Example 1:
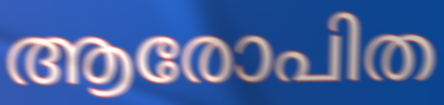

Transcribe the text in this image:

ആരോപിത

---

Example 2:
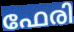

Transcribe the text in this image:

ഫേരി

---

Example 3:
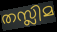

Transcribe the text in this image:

തസ്ലിമ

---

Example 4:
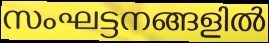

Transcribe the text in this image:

സംഘട്ടനങ്ങളിൽ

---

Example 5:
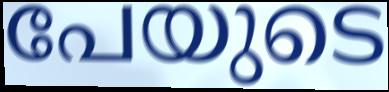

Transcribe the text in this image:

പേയുടെ